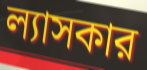
ল্যাসকার